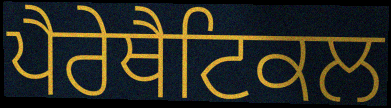
ਪੈਰੇਥੈਟਿਕਲ